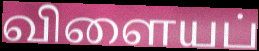
விளையப்